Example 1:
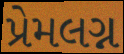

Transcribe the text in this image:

પ્રેમલગ્ન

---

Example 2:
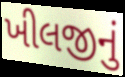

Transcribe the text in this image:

ખીલજીનું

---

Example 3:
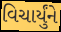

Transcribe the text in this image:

વિચાર્યુંને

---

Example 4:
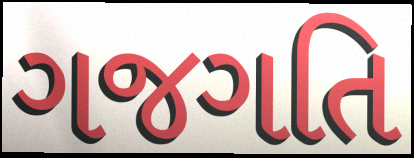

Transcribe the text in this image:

ગજગતિ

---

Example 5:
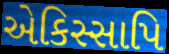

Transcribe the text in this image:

એકિસ્સાપિ